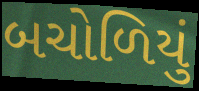
બચોળિયું